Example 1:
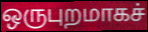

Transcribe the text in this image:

ஒருபுறமாகச்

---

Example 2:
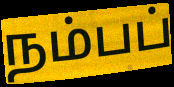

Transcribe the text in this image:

நம்பப்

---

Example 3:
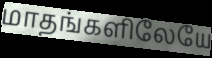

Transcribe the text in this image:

மாதங்களிலேயே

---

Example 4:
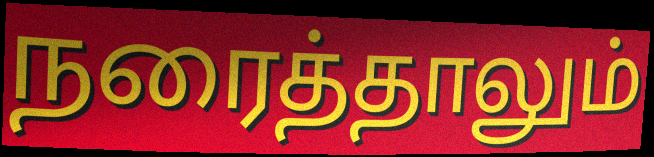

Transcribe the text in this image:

நரைத்தாலும்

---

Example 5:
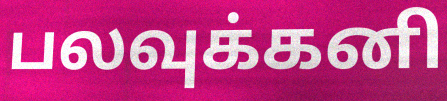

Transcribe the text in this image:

பலவுக்கனி